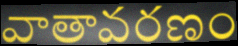
వాతావరణం